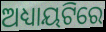
ଅଧ୍ୟାୟଟିରେ